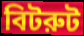
বিটরুট